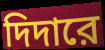
দিদারে